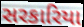
સરકારિયા